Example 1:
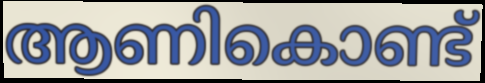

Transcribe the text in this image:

ആണികൊണ്ട്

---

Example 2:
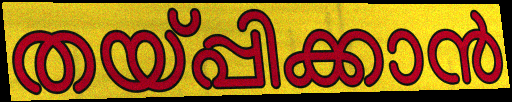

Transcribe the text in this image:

തയ്പ്പിക്കാൻ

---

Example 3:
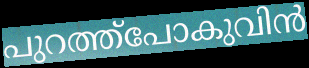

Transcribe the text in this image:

പുറത്ത്പോകുവിൻ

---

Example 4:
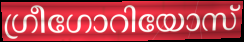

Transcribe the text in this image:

ഗ്രീഗോറിയോസ്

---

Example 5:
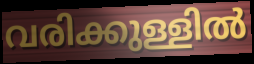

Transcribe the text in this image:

വരിക്കുള്ളിൽ